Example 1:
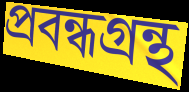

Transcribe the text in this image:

প্রবন্ধগ্রন্থ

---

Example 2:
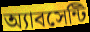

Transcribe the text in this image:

অ্যাবসেন্টি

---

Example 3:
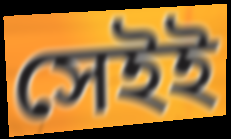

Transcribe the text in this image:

সেইই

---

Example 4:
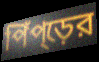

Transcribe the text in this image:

পিঁপ্‌ড়ের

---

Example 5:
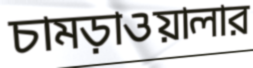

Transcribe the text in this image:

চামড়াওয়ালার